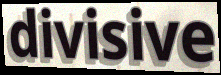
divisive